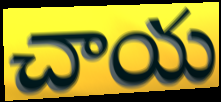
చాయ